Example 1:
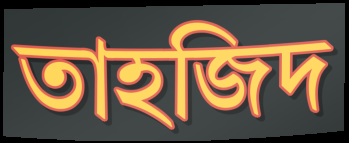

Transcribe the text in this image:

তাহজিদ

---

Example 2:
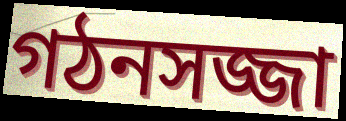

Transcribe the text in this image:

গঠনসজ্জা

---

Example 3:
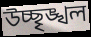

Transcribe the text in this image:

উচ্ছৃঙ্খল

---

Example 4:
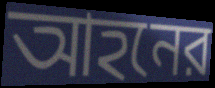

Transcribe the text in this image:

আহনের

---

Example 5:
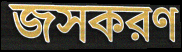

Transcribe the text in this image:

জসকরণ